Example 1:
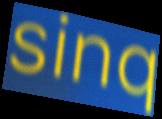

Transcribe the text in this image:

sinq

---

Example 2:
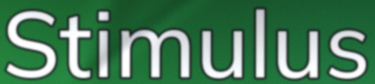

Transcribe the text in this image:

Stimulus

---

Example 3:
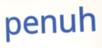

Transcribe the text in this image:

penuh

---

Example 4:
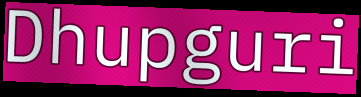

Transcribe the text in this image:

Dhupguri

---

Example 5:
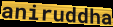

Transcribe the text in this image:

aniruddha